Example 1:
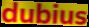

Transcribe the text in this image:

dubius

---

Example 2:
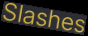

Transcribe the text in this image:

Slashes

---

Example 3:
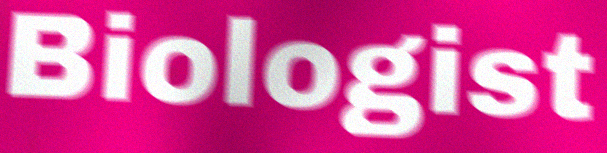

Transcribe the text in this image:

Biologist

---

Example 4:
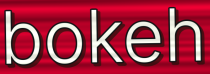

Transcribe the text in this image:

bokeh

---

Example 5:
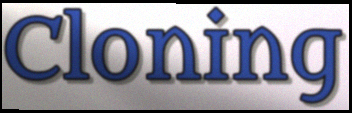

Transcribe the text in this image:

Cloning